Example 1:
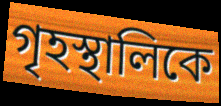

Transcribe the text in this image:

গৃহস্থালিকে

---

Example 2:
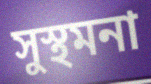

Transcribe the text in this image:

সুস্থমনা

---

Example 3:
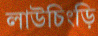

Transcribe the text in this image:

লাউচিংড়ি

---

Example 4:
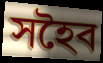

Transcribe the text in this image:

সহৈব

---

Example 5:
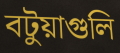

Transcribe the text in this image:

বটুয়াগুলি